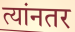
त्यांनतर